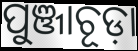
ପୁଞ୍ଜାଚୂଡ଼ା